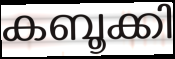
കബൂക്കി